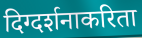
दिग्दर्शनाकरिता